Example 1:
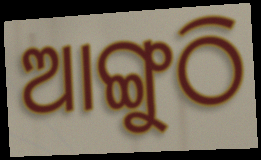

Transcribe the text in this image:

ଆଙ୍ଗୁଠି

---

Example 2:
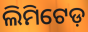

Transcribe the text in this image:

ଲିମିଟେଡ଼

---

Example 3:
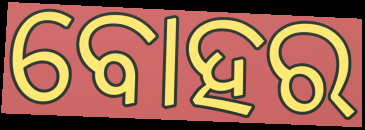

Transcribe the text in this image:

ବୋହର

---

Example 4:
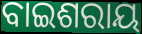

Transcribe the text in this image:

ବାଇଶରାୟ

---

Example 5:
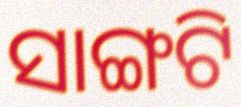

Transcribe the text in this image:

ସାଙ୍ଗଟି